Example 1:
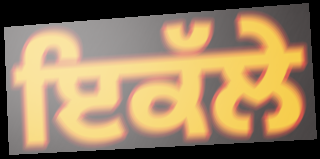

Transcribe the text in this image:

ਇਕੱਲੇ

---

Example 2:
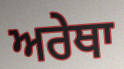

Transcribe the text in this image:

ਅਰੇਥਾ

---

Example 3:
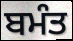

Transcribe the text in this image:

ਬਮੰਤ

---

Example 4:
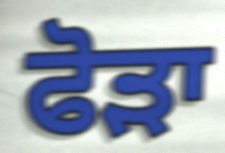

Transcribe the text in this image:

ਫੋੜਾ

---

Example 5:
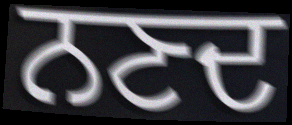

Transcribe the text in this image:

ਨਣਦ